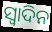
ସ୍ବାଦିନ